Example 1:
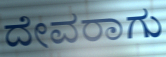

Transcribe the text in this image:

ದೇವರಾಗು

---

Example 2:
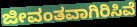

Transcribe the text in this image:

ಜೀವಂತವಾಗಿರಿಸಿವೆ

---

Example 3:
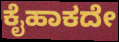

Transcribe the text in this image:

ಕೈಹಾಕದೇ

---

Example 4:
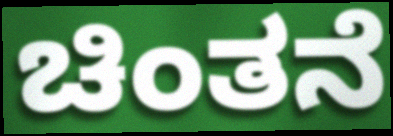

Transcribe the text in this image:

ಚಿಂತನೆ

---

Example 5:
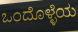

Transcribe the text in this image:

ಒಂದೊಳ್ಳೆಯ